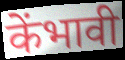
केंभावी